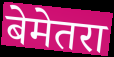
बेमेतरा